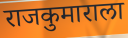
राजकुमाराला